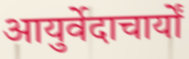
आयुर्वेदाचार्यों